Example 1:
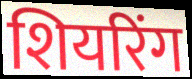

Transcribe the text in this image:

शियरिंग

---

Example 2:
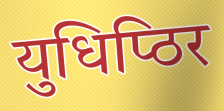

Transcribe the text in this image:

युधिप्ठिर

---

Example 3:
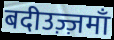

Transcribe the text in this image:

बदीउज़्ज़माँ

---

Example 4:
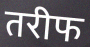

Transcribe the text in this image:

तरीफ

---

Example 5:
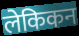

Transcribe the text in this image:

लेकिकन